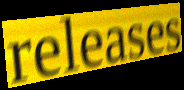
releases